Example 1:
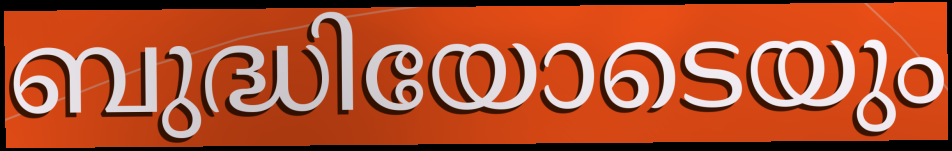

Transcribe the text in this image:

ബുദ്ധിയോടെയും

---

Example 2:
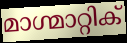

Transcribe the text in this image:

മാഗ്മാറ്റിക്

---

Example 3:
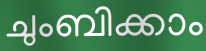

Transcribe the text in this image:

ചുംബിക്കാം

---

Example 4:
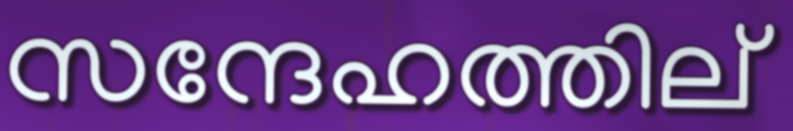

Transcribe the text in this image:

സന്ദേഹത്തില്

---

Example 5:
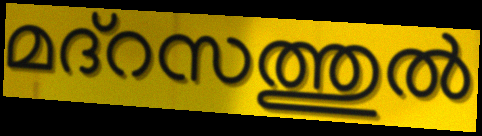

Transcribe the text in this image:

മദ്റസത്തുൽ